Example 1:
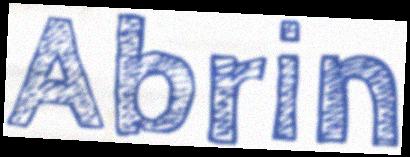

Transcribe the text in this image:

Abrin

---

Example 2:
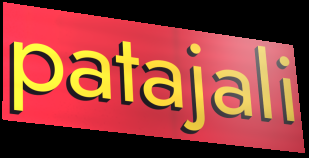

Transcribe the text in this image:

patajali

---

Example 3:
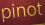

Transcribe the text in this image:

pinot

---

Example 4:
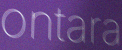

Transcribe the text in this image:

ontara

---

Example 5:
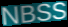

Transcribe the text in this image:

NBSS